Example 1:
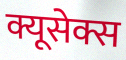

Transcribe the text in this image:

क्यूसेक्स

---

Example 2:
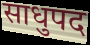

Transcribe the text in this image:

साधुपद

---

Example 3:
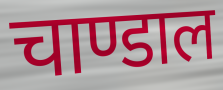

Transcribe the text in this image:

चाण्डाल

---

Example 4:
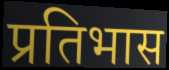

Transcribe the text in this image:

प्रतिभास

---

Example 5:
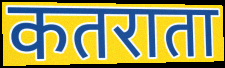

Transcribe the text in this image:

कतराता